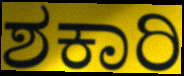
ಶಕಾರಿ